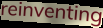
reinventing